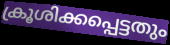
ക്രൂശിക്കപ്പെട്ടതും